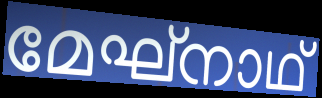
മേഘ്നാഥ്